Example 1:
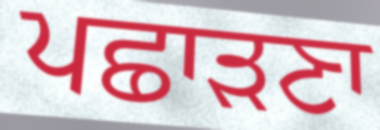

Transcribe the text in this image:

ਪਛਾੜਣਾ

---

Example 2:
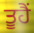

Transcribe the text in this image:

ਤੂਹੈਂ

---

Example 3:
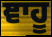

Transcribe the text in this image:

ਞਾਹੂ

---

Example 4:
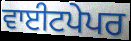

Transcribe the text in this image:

ਵਾਈਟਪੇਪਰ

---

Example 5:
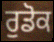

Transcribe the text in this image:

ਰੁਡੋਕ